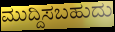
ಮುದ್ದಿಸಬಹುದು